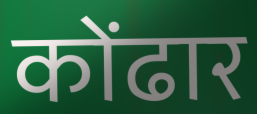
कोंढार